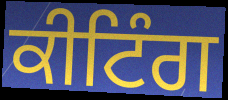
ਕੀਟਿੰਗ